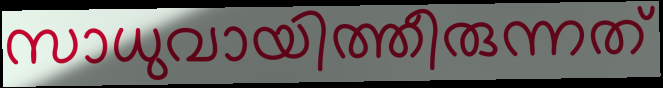
സാധുവായിത്തീരുന്നത്